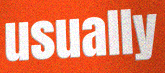
usually